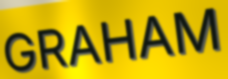
GRAHAM